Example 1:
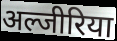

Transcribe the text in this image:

अल्जीरिया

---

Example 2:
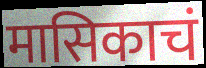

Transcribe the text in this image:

मासिकाचं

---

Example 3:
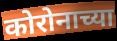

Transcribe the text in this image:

कोरोनाच्या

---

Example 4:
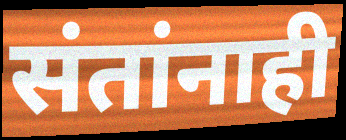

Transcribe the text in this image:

संतांनाही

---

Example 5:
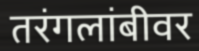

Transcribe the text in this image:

तरंगलांबीवर